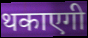
थकाएगी